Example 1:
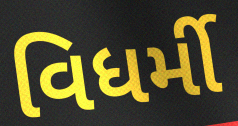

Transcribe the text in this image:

વિધર્મી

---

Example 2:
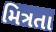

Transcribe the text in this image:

મિત્રતા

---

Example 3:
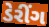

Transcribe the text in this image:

ડેરીંગ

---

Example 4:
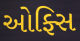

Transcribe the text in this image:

ઓફ્સિ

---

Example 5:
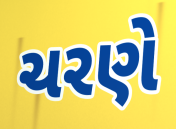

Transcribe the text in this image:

ચરણે